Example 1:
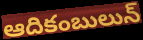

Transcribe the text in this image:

ఆదికంబులున్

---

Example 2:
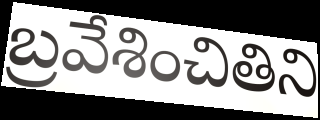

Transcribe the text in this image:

బ్రవేశించితిని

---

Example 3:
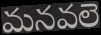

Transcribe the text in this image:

మనవలె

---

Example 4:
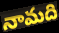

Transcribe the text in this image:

నామది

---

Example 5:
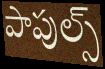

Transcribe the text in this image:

పాపుల్స్